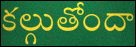
కల్గుతోందా